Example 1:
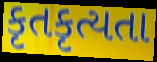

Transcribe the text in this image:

કૃતકૃત્યતા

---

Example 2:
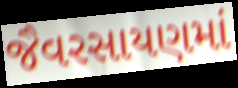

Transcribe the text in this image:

જૈવરસાયણમાં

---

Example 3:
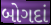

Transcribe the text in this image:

બોગદાં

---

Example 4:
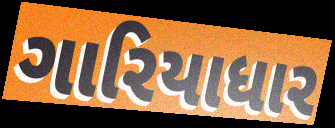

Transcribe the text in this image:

ગારિયાધાર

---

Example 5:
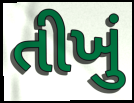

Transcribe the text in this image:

તીખું